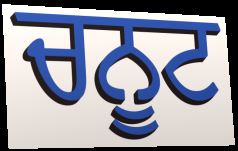
ਚਨੂਟ